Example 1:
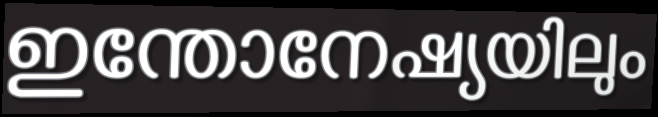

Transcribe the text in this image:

ഇന്തോനേഷ്യയിലും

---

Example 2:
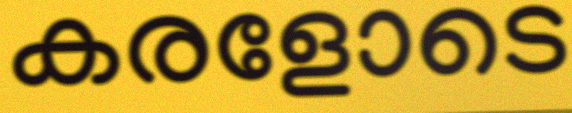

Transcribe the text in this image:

കരളോടെ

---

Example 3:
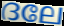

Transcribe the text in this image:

ദലേ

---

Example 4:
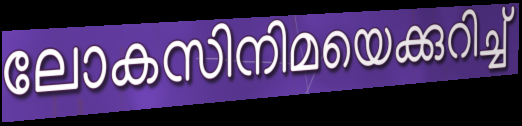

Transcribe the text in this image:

ലോകസിനിമയെക്കുറിച്ച്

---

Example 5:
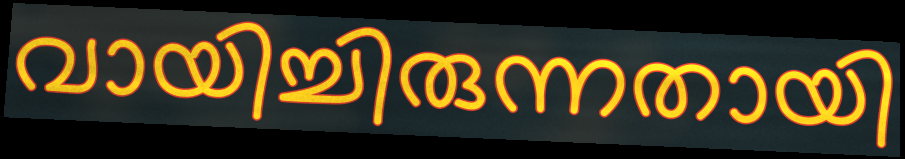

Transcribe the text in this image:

വായിച്ചിരുന്നതായി